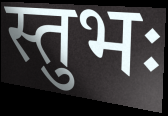
स्तुभः